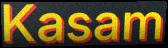
Kasam